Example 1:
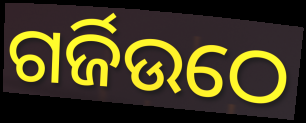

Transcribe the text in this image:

ଗର୍ଜିଉଠେ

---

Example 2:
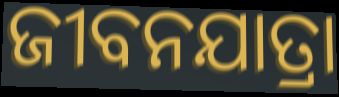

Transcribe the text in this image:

ଜୀବନଯାତ୍ରା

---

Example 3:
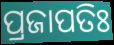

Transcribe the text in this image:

ପ୍ରଜାପତିଃ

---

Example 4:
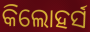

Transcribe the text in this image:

କିଲୋହର୍ସ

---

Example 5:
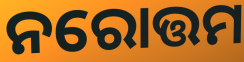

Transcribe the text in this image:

ନରୋତ୍ତମ